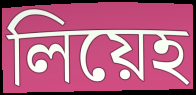
লিয়েহ